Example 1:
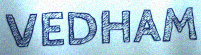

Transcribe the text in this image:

VEDHAM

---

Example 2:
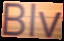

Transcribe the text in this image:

Blv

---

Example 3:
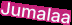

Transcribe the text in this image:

Jumalaa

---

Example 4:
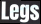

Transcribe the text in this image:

Legs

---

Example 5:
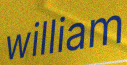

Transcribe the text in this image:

william